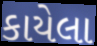
કાયેલા